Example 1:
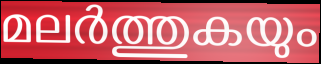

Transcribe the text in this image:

മലർത്തുകയും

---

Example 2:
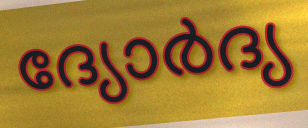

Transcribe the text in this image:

ദ്യോർദ്യ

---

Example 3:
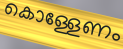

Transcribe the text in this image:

കൊള്ളേണം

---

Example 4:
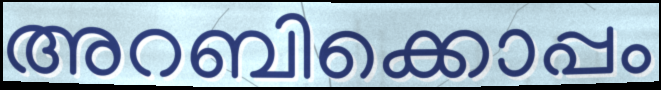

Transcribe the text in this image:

അറബിക്കൊപ്പം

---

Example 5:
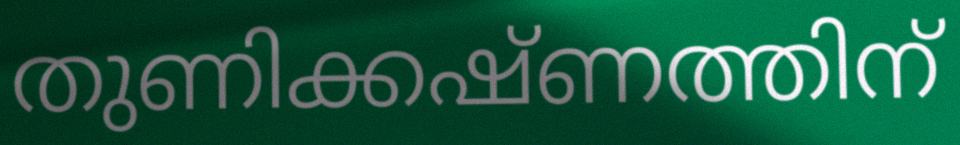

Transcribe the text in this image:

തുണിക്കഷ്ണത്തിന്